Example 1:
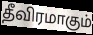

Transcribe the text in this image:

தீவிரமாகும்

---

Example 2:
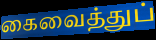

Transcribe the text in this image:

கைவைத்துப்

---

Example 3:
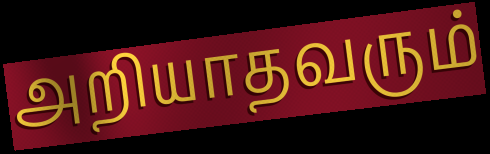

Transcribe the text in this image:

அறியாதவரும்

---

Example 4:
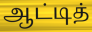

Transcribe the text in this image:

ஆட்டித்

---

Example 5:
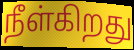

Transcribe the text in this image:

நீள்கிறது